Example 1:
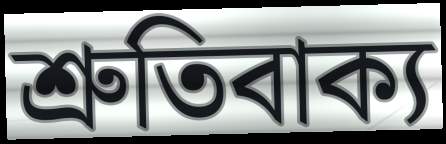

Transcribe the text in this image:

শ্রুতিবাক্য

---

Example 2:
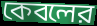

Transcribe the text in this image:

কেবলের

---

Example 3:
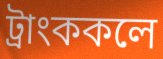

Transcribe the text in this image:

ট্রাংককলে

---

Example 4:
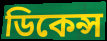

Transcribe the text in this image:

ডিকেন্স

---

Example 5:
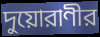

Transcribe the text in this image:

দুয়োরাণীর